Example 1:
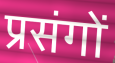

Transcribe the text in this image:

प्रसंगों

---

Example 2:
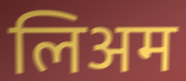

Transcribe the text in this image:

लिअम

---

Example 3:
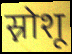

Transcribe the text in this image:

स्नोशू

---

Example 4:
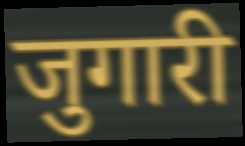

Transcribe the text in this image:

जुगारी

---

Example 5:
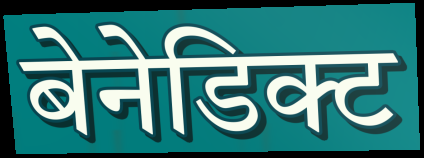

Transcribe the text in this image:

बेनेडिक्ट